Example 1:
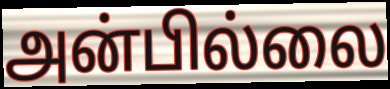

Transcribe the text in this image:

அன்பில்லை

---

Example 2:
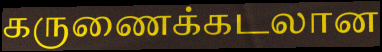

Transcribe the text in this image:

கருணைக்கடலான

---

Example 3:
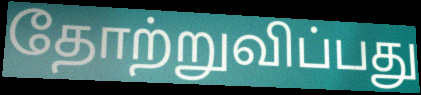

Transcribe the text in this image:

தோற்றுவிப்பது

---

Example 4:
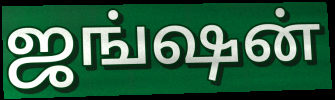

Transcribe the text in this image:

ஜங்ஷன்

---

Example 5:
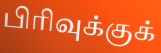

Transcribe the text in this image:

பிரிவுக்குக்